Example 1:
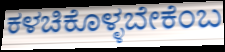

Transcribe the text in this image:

ಕಳಚಿಕೊಳ್ಳಬೇಕೆಂಬ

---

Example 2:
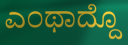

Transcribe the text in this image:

ಎಂಥಾದ್ದೊ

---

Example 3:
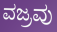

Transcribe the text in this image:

ವಜ್ರವು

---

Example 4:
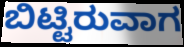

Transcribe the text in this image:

ಬಿಟ್ಟಿರುವಾಗ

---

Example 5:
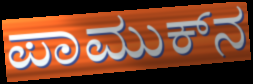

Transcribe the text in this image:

ಪಾಮುಕ್‍ನ